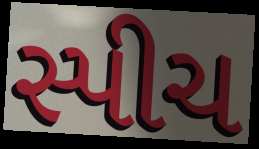
સ્પીચ